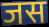
जस